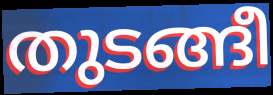
തുടങ്ങീ